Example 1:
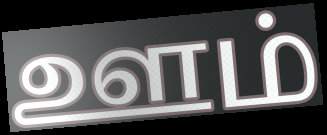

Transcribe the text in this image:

ஊம்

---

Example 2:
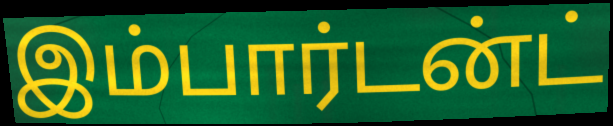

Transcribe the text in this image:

இம்பார்டன்ட்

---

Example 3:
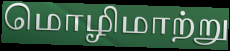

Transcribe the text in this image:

மொழிமாற்று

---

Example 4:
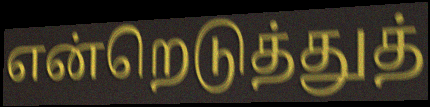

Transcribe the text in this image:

என்றெடுத்துத்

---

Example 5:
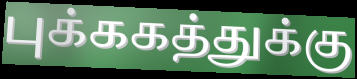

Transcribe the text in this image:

புக்ககத்துக்கு